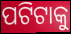
ପଟିଟାକୁ